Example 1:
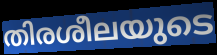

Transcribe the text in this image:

തിരശീലയുടെ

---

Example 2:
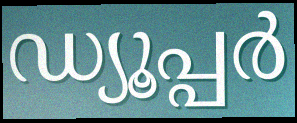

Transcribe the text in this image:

ഡ്യൂപ്പർ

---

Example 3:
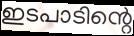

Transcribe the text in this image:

ഇടപാടിന്റെ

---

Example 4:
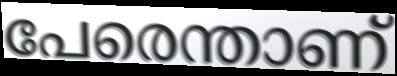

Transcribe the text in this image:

പേരെന്താണ്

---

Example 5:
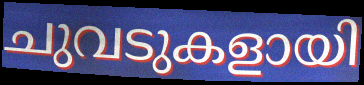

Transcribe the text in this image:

ചുവടുകളായി